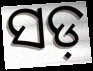
ସଡ଼